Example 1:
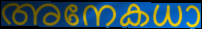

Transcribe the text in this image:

അനേകധാ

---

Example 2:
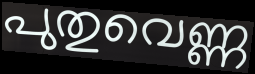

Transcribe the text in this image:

പുതുവെണ്ണ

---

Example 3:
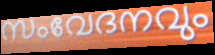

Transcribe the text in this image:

സംവേദനവും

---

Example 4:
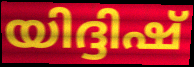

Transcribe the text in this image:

യിദ്ദിഷ്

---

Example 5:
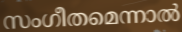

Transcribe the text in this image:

സംഗീതമെന്നാൽ